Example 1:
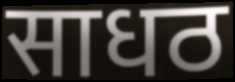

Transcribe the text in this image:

साधठ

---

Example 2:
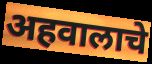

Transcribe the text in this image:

अहवालाचे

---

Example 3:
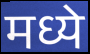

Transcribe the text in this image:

मध्ये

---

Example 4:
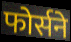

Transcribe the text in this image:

फोर्सने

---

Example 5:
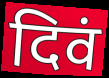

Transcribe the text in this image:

दिवं